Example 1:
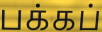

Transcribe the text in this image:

பக்கப்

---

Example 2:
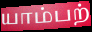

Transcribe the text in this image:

யாம்பற்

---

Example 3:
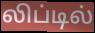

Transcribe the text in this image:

லிப்டில்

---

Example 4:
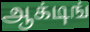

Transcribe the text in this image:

ஆக்டிங்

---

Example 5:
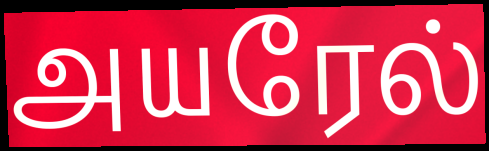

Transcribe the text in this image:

அயரேல்